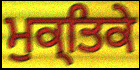
ਮੁਕ੍ਤਿਕੇ